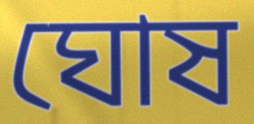
ঘোষ